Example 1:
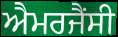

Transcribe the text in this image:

ਐਮਰਜੈਂਸੀ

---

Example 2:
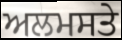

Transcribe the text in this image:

ਅਲਮਸਤੇ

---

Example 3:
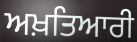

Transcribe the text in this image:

ਅਖ਼ਤਿਆਰੀ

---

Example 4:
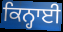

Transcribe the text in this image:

ਕਿਨ੍ਹਾਈ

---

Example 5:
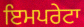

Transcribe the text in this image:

ਇਮਪਰੇਟਾ